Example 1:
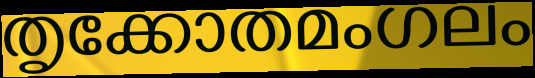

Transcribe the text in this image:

തൃക്കോതമംഗലം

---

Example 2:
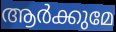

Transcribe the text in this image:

ആർക്കുമേ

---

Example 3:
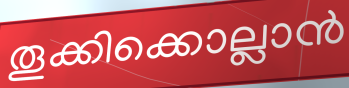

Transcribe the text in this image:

തൂക്കിക്കൊല്ലാൻ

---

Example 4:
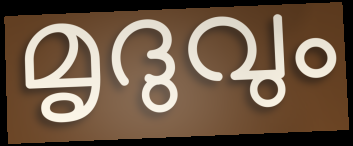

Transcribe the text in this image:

മൃദുവും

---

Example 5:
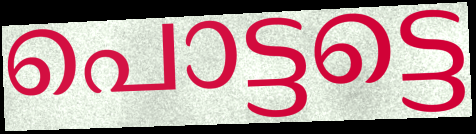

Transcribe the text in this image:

പൊട്ടട്ടെ